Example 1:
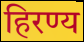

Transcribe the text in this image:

हिरण्य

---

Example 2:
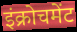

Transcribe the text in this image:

इंक्रोचमेंट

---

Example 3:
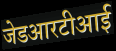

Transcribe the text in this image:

जेडआरटीआई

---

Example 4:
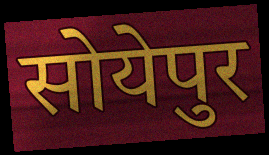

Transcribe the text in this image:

सोयेपुर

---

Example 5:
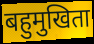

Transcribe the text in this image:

बहुमुखिता